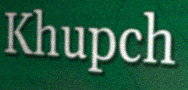
Khupch